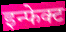
इन्फेक्ट